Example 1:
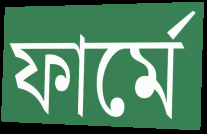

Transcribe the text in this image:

ফার্মে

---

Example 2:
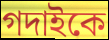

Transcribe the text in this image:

গদাইকে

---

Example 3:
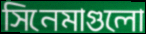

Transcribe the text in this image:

সিনেমাগুলো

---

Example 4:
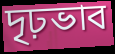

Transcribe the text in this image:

দৃঢ়ভাব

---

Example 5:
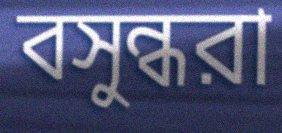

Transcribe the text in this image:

বসুন্ধরা